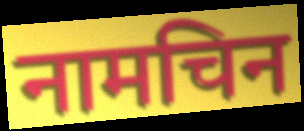
नामचिन